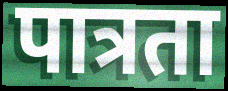
पात्रता